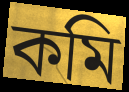
কমি